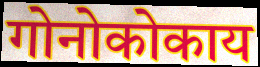
गोनोकोकाय